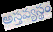
అస్తవ్యస్థం